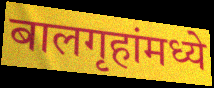
बालगृहांमध्ये